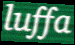
luffa